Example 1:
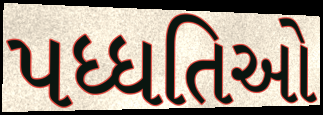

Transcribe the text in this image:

પધ્ધતિઓ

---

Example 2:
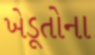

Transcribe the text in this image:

ખેડૂતોના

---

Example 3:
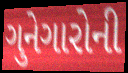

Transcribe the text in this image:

ગુનેગારોની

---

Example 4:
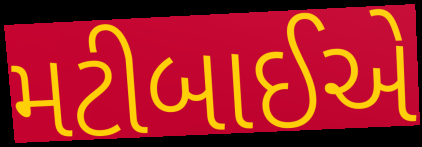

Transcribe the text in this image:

મટીબાઈએ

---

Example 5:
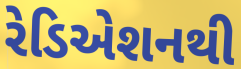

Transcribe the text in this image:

રેડિએશનથી